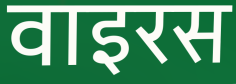
वाइरस